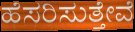
ಹೆಸರಿಸುತ್ತೇವೆ